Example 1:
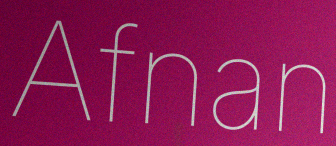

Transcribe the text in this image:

Afnan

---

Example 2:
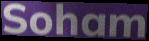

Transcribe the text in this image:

Soham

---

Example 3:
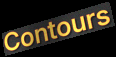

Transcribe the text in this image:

Contours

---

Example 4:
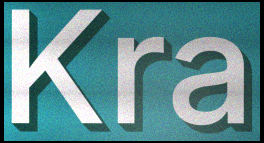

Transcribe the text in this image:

Kra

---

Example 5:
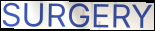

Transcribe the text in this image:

SURGERY